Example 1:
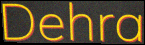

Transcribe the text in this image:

Dehra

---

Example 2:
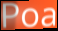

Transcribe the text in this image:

Poa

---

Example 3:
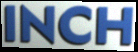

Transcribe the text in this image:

INCH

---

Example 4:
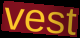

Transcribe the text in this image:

vest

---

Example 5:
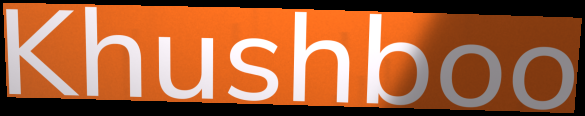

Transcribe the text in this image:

Khushboo